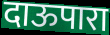
दाऊपारा